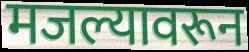
मजल्यावरून